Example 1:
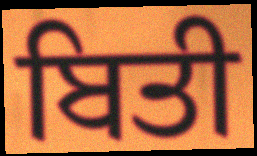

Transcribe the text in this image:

ਬਿਤੀ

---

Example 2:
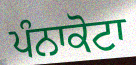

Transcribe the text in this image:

ਪੰਨਾਕੋਟਾ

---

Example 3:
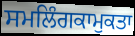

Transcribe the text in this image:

ਸਮਲਿੰਗਕਾਮੁਕਤਾ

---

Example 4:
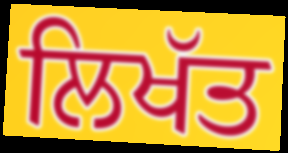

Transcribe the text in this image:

ਲਿਖੱਤ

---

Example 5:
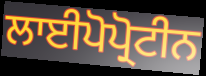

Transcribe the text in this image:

ਲਾਈਪੋਪ੍ਰੋਟੀਨ